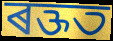
ৰক্তত